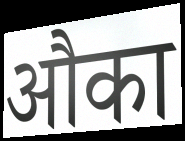
औका